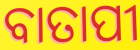
ବାତାପୀ